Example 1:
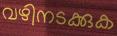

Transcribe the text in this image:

വഴിനടക്കുക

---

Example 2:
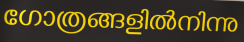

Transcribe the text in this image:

ഗോത്രങ്ങളിൽനിന്നു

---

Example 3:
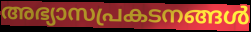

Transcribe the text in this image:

അഭ്യാസപ്രകടനങ്ങൾ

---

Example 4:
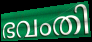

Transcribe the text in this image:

ഭവംതി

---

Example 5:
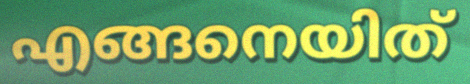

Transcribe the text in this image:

എങ്ങനെയിത്